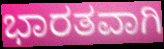
ಭಾರತವಾಗಿ